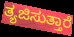
ತ್ಯಜಿಸುತ್ತಾರೆ